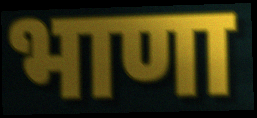
भाणा